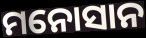
ମନୋସାନ